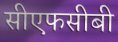
सीएफसीबी